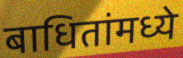
बाधितांमध्ये